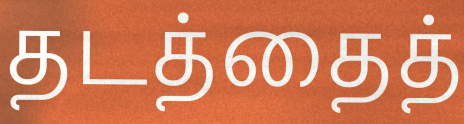
தடத்தைத்